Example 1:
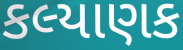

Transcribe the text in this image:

કલ્યાણક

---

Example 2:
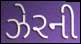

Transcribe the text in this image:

ઝેરની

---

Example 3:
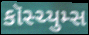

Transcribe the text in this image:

કૉસ્ચ્યુમ્સ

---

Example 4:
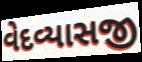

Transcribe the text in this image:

વેદવ્યાસજી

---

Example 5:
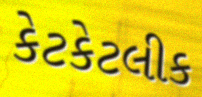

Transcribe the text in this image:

કેટકેટલીક